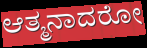
ಆತ್ಮನಾದರೋ